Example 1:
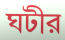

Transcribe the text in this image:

ঘটীর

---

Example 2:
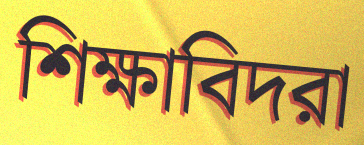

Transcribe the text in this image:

শিক্ষাবিদরা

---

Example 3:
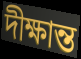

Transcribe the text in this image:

দীক্ষান্ত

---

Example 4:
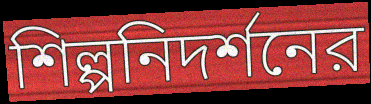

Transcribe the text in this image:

শিল্পনিদর্শনের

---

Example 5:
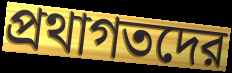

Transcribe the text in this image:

প্রথাগতদের